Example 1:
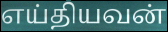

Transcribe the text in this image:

எய்தியவன்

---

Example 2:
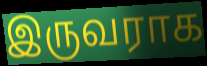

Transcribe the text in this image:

இருவராக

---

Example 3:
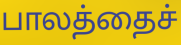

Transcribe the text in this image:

பாலத்தைச்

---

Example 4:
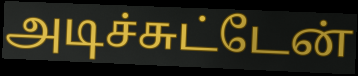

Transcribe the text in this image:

அடிச்சுட்டேன்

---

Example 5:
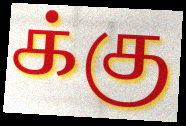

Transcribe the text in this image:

க்கு